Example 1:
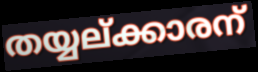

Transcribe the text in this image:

തയ്യല്ക്കാരന്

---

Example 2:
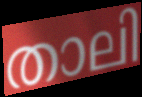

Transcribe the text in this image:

താലി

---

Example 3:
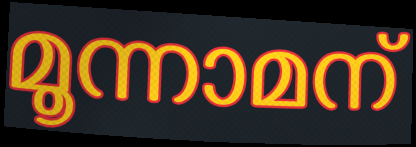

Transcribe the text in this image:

മൂന്നാമന്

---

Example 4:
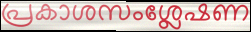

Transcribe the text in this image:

പ്രകാശസംശ്ലേഷണ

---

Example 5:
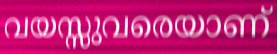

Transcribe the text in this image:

വയസ്സുവരെയാണ്